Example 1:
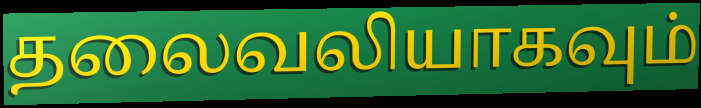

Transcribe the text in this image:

தலைவலியாகவும்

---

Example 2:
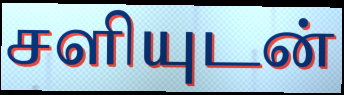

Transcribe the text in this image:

சளியுடன்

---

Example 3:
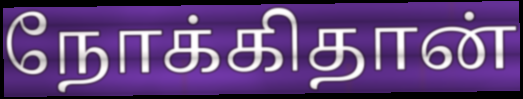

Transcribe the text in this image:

நோக்கிதான்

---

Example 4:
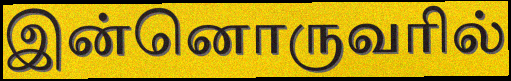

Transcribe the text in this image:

இன்னொருவரில்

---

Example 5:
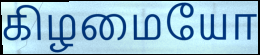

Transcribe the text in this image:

கிழமையோ